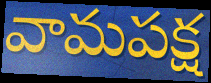
వామపక్ష